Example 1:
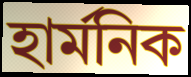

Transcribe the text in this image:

হার্মনিক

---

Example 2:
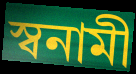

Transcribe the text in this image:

স্বনামী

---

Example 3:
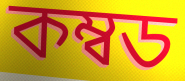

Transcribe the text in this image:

কম্বড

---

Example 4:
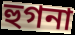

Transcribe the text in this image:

হুগনা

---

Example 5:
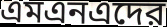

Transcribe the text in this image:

এমএনএদের